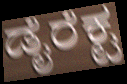
ಡೈರೆಕ್ಟ